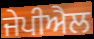
ਜੇਪੀਐਲ